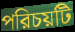
পরিচয়টি